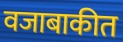
वजाबाकीत